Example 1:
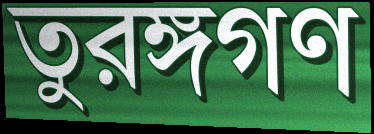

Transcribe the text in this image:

তুরঙ্গগণ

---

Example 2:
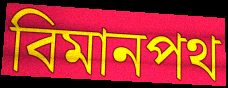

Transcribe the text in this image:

বিমানপথ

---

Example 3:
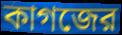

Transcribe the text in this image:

কাগজের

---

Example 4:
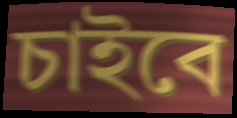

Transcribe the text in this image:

চাইবে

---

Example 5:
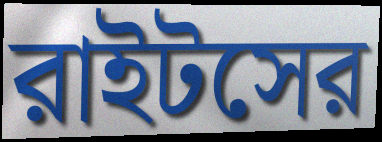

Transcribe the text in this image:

রাইটসের